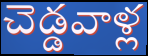
చెడ్డవాళ్ల